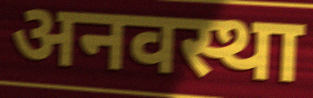
अनवस्था